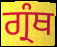
ਗ੍ਰੰਥ